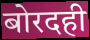
बोरदही